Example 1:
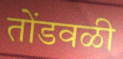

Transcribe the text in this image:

तोंडवळी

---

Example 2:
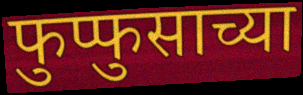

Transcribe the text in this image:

फुप्फुसाच्या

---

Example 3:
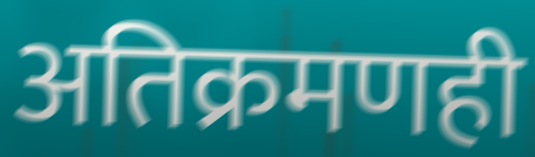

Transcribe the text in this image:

अतिक्रमणही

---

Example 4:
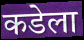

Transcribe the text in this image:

कडेला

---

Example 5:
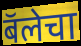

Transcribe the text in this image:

बॅलेचा